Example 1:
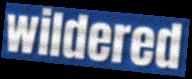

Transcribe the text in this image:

wildered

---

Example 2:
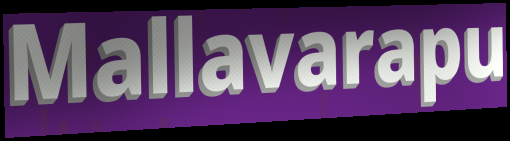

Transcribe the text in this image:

Mallavarapu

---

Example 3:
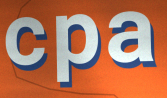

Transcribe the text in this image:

cpa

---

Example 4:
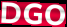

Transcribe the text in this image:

DGO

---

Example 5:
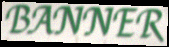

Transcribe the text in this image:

BANNER